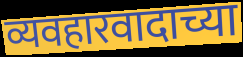
व्यवहारवादाच्या